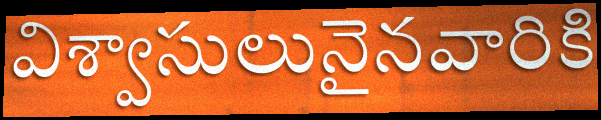
విశ్వాసులునైనవారికి